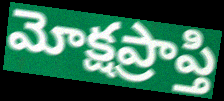
మోక్షప్రాప్తి